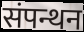
संपन्थन